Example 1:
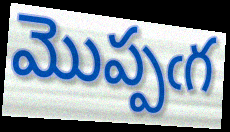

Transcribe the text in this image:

మొప్పఁగ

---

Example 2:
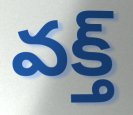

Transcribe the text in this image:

వక్త్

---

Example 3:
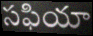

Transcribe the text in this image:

సఫియా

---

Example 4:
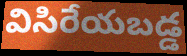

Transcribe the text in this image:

విసిరేయబడ్డ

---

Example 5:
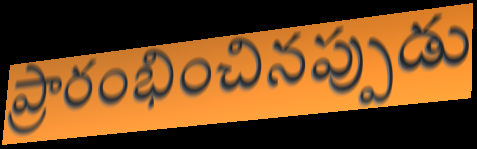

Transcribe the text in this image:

ప్రారంభించినప్పుడు